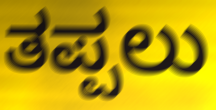
ತಪ್ಪಲು